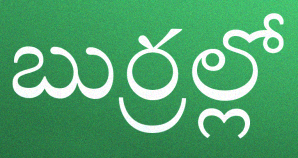
బుర్రల్లో